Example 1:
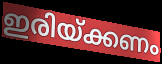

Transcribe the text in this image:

ഇരിയ്ക്കണം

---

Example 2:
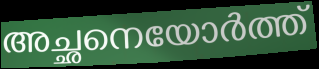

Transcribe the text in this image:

അച്ഛനെയോർത്ത്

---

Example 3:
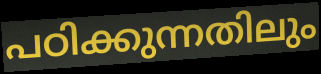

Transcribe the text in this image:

പഠിക്കുന്നതിലും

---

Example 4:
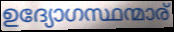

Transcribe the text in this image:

ഉദ്യോഗസ്ഥന്മാര്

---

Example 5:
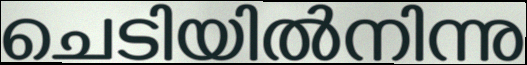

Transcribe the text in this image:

ചെടിയിൽനിന്നു